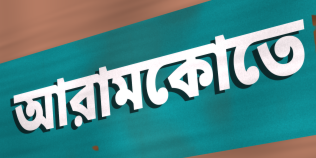
আরামকোতে